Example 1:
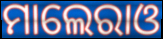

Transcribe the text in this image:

ମାଲେରାଓ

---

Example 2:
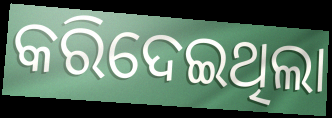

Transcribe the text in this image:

କରିଦେଇଥିଲା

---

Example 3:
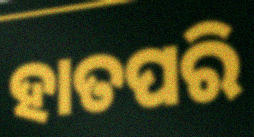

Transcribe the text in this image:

ହାତପରି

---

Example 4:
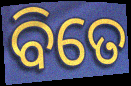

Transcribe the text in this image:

ବିତେ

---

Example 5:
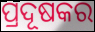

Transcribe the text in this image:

ପ୍ରଦୂଷକର